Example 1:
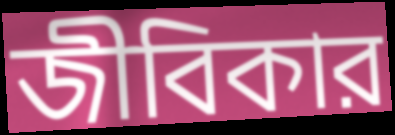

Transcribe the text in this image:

জীবিকার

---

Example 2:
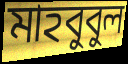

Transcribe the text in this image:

মাহবুবুল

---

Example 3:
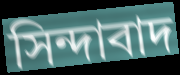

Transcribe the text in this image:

সিন্দাবাদ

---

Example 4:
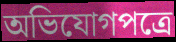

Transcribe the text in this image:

অভিযোগপত্রে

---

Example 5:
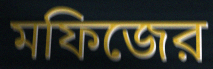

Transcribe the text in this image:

মফিজের